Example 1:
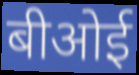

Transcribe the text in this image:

बीओई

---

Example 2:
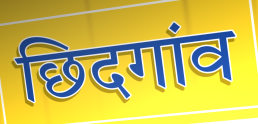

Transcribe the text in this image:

छिदगांव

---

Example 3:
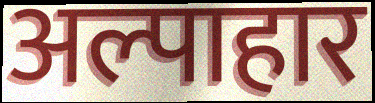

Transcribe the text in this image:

अल्पाहार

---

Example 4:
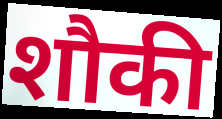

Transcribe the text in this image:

शौकी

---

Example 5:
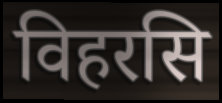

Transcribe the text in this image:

विहरसि